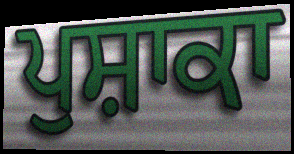
ਪੁਸ਼ਾਕਾ